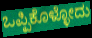
ಒಪ್ಪಿಕೊಳ್ಳೋದು